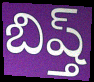
బిష్త్